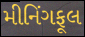
મીનિંગફૂલ